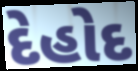
દેહોદ